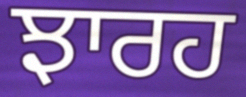
ਝਾਰਹ